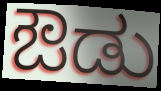
ಔಡು